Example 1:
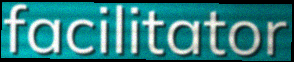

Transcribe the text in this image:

facilitator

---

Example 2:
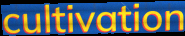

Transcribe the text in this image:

cultivation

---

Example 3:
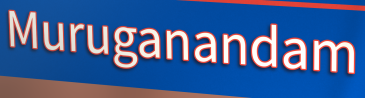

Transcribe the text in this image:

Muruganandam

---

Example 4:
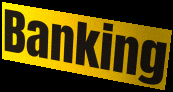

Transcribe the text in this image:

Banking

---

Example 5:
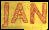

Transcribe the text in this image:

JAN